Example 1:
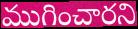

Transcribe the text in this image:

ముగించారని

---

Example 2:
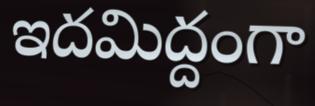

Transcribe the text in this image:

ఇదమిద్దంగా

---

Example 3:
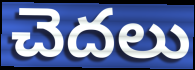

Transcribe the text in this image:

చెదలు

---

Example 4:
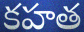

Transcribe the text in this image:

కహత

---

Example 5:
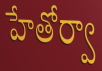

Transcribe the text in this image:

హేతోర్వా